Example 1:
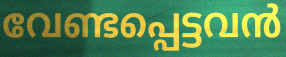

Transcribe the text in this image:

വേണ്ടപ്പെട്ടവൻ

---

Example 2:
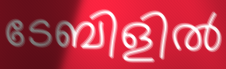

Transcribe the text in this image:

ടേബിളിൽ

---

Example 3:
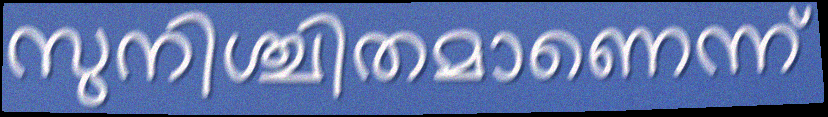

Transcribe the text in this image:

സുനിശ്ചിതമാണെന്ന്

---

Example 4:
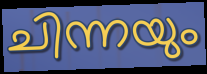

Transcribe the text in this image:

ചിന്നയും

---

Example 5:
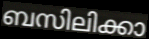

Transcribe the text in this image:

ബസിലിക്കാ